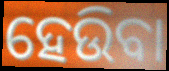
ହେଉିବା